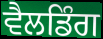
ਵੈਲਡਿੰਗ